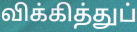
விக்கித்துப்